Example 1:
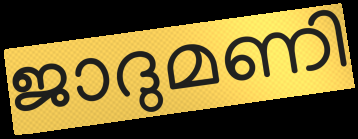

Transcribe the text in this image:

ജാദുമണി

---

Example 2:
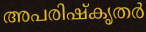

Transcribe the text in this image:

അപരിഷ്കൃതർ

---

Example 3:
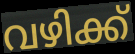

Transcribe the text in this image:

വഴിക്ക്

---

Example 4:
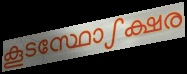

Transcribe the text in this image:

കൂടസ്ഥോഽക്ഷര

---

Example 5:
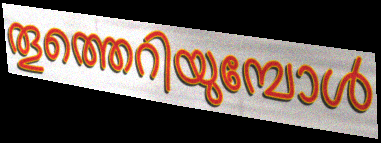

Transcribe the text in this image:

തൂത്തെറിയുമ്പോൾ